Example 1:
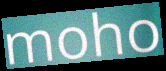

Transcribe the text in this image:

moho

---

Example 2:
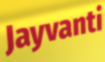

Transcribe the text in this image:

Jayvanti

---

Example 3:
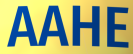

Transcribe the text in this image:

AAHE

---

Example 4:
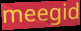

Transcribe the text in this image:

meegid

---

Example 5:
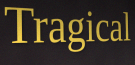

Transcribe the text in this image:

Tragical